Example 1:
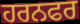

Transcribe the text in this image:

ਹਰਨਫਰ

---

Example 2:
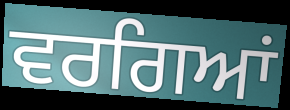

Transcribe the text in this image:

ਵਰਗਿਆਂ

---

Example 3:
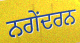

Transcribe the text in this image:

ਨਗੇਂਦਰਨ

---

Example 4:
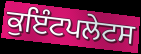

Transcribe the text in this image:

ਕੁਇੰਟਪਲੇਟਸ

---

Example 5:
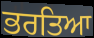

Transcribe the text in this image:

ਭਰਤਿਆ